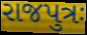
રાજપુત્રઃ